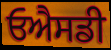
ਓਐਸਡੀ